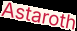
Astaroth